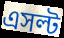
এসল্ট